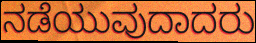
ನಡೆಯುವುದಾದರು